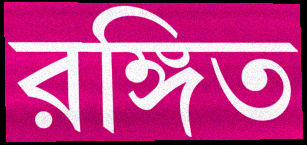
রঙ্গিত